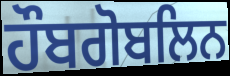
ਹੌਬਗੋਬਲਿਨ